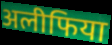
अलीफिया